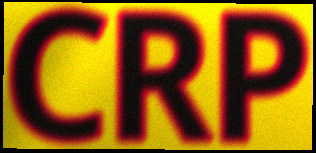
CRP